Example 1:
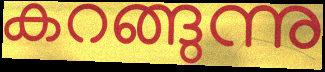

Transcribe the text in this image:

കറങ്ങുന്നു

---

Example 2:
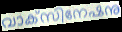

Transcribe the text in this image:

വാക്‌സിനേഷനു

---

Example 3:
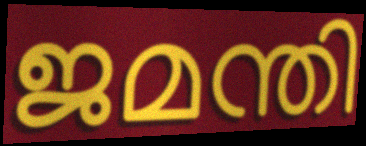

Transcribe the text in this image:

ജമന്തി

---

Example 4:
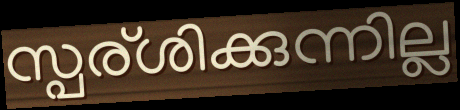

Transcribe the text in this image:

സ്പര്ശിക്കുന്നില്ല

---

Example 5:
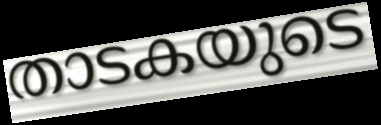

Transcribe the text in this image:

താടകയുടെ